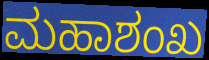
ಮಹಾಶಂಖ